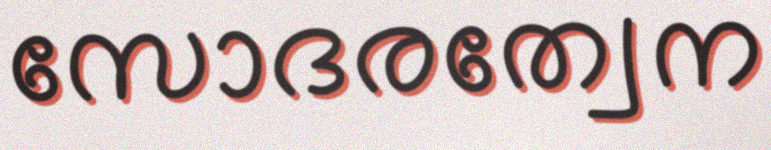
സോദരത്വേന